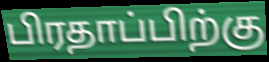
பிரதாப்பிற்கு